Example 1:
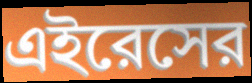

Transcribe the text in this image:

এইরেসের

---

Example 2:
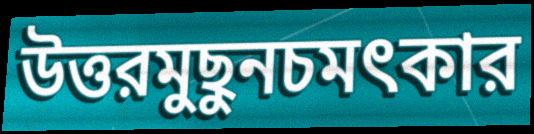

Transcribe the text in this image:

উত্তরমুছুনচমৎকার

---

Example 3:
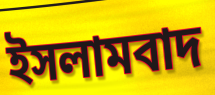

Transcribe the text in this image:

ইসলামবাদ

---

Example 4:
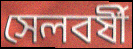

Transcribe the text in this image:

সেলবর্ষী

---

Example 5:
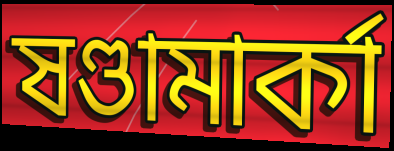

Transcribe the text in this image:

ষণ্ডামার্কা